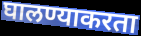
घालण्याकरता